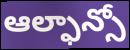
ఆల్ఫాన్సో